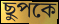
ছুপকে